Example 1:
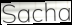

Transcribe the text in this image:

Sacha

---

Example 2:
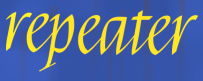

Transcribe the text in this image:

repeater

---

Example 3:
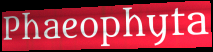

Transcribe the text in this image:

Phaeophyta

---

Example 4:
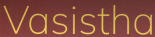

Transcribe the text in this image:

Vasistha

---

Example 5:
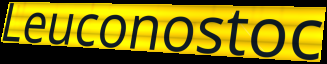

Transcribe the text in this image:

Leuconostoc